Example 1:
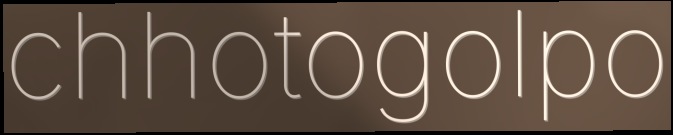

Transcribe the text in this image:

chhotogolpo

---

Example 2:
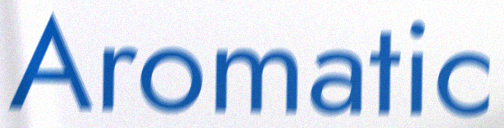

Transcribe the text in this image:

Aromatic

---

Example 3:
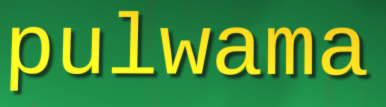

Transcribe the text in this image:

pulwama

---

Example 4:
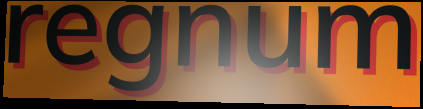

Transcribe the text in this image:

regnum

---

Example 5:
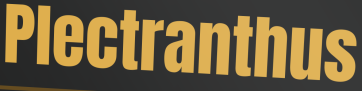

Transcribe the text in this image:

Plectranthus